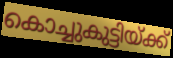
കൊച്ചുകുട്ടിയ്ക്ക്